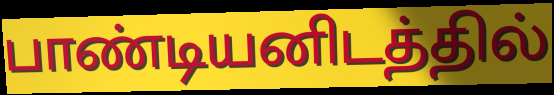
பாண்டியனிடத்தில்